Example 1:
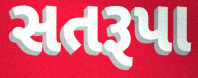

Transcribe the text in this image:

સતરૂપા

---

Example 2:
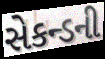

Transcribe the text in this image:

સેકન્ડની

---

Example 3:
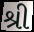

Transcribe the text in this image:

શ્રી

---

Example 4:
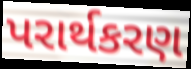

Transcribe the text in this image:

પરાર્થકરણ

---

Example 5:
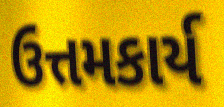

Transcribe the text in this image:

ઉત્તમકાર્ય